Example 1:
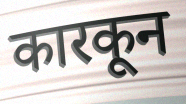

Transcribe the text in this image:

कारकून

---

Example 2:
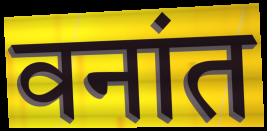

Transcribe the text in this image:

वनांत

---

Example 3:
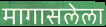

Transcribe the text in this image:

मागासलेला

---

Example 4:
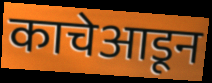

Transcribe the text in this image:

काचेआडून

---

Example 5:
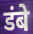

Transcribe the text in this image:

डंबे